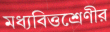
মধ্যবিত্তশ্রেণীর